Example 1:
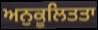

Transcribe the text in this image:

ਅਨੁਕੂਲਿਤਤਾ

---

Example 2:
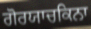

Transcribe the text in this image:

ਗੋਰਯਾਚਕਿਨਾ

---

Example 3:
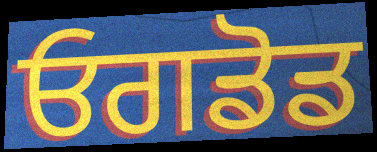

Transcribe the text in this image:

ਓਗਡੋਡ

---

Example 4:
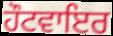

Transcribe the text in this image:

ਹੌਟਵਾਇਰ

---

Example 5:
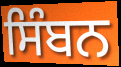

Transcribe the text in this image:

ਸਿੰਬਨ